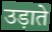
उड़ाते